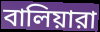
বালিয়ারা